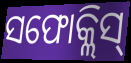
ସଫୋକ୍ଲିସ୍